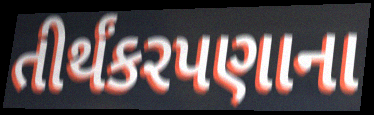
તીર્થંકરપણાના